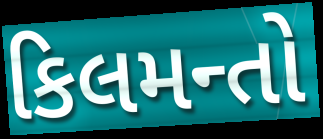
કિલમન્તો